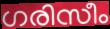
ഗരിസീം